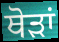
ਥੋੜਾਂ